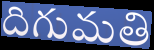
దిగుమతి